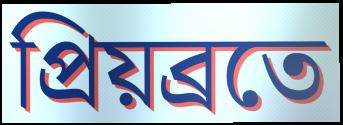
প্ৰিয়ব্ৰতে